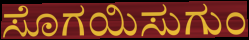
ಸೊಗಯಿಸುಗುಂ